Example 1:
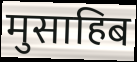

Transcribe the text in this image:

मुसाहिब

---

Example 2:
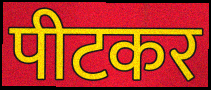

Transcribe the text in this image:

पीटकर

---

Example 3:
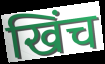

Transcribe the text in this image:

खिंच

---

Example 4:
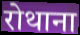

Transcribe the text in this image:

रोथाना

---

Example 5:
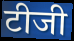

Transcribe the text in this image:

टीजी